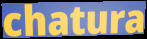
chatura